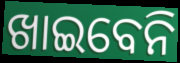
ଖାଇବେନି